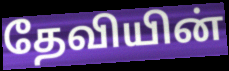
தேவியின்